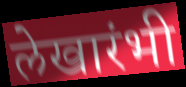
लेखारंभी